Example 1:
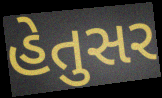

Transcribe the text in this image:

હેતુસર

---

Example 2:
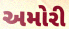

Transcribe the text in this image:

અમોરી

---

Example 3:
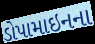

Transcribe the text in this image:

ડોપામાઇનના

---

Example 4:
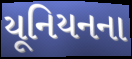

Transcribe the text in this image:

યૂનિયનના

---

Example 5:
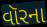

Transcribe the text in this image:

વૉરના